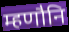
म्हणौनि